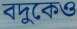
বদুকেও